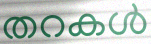
തറകൾ